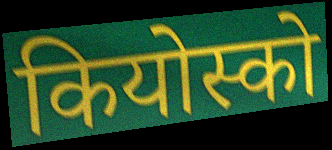
कियोस्को